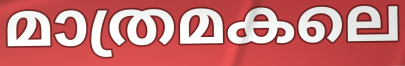
മാത്രമകലെ